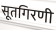
सूतगिरणी